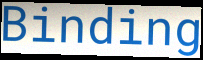
Binding